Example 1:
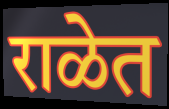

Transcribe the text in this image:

राळेत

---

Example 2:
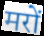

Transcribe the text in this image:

मरों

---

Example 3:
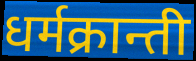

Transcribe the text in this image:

धर्मक्रान्ती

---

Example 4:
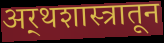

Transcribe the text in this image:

अर्थशास्त्रातून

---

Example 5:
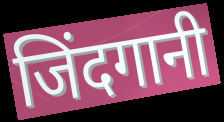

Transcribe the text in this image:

जिंदगानी